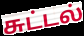
சுட்டல்